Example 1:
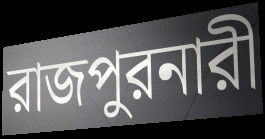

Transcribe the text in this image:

রাজপুরনারী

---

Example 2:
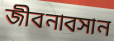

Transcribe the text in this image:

জীবনাবসান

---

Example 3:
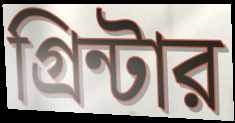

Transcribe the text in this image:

গ্রিন্টার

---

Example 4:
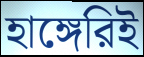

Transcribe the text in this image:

হাঙ্গেরিই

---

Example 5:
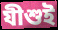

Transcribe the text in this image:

যীশুই